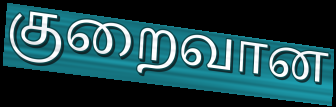
குறைவான